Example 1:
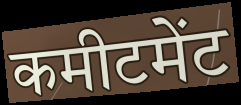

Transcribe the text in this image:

कमीटमेंट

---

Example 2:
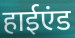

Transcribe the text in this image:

हाईएंड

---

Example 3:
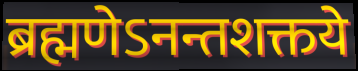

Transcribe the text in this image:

ब्रह्मणेऽनन्तशक्तये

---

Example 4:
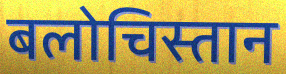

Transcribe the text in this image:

बलोचिस्तान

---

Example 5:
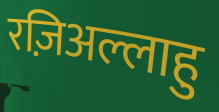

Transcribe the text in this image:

रज़िअल्लाहु